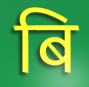
बि